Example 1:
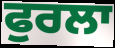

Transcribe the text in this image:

ਫੁਰਲਾ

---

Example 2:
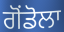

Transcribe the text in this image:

ਗੋਂਡੋਲਾ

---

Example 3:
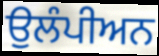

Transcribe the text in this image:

ਉੁਲੰਪੀਅਨ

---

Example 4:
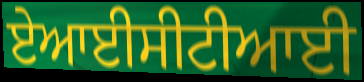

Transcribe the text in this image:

ਏਆਈਸੀਟੀਆਈ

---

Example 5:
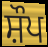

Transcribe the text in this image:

ਸ਼ੌਪ